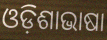
ଓଡ଼ିଶାଭାଷା